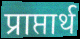
प्राप्तार्थ